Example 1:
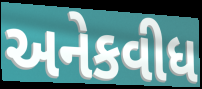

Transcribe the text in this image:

અનેકવીધ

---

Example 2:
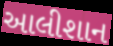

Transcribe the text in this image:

આલીશાન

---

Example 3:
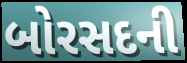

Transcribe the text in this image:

બોરસદની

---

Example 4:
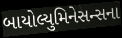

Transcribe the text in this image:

બાયોલ્યુમિનેસન્સના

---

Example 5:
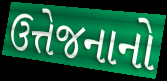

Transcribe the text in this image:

ઉત્તેજનાનો